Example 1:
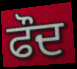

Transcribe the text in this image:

ਫੌਦ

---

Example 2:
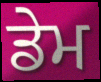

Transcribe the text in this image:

ਡੇਮ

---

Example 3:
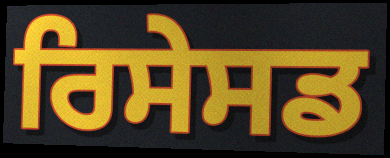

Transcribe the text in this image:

ਰਿਸੇਸਡ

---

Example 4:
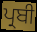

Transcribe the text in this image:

ਪ੍ਰਬੀ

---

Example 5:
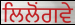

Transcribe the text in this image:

ਲਿਲੋਂਗਵੇ